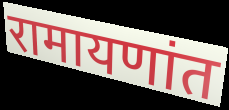
रामायणांत